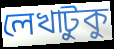
লেখাটুকু